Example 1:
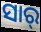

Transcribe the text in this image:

ସାର୍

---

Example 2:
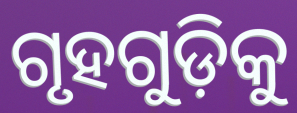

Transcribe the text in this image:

ଗୃହଗୁଡ଼ିକୁ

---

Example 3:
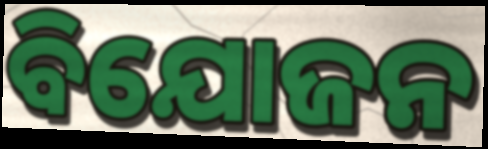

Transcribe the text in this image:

ବିଯୋଜନ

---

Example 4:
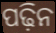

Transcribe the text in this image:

ପଢ଼ିନ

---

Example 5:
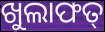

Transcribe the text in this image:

ଖୁଲାଫତ୍